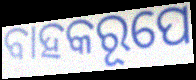
ବାହକରୂପେ